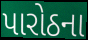
પારોઠના